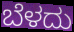
ಬೆಳದು